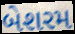
બેશરમ